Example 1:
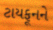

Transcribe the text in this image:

ટાયફૂનને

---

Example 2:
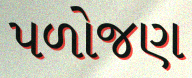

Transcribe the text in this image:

પળોજણ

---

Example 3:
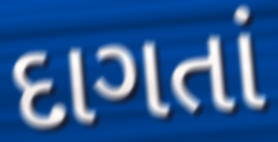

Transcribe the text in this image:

દાગતાં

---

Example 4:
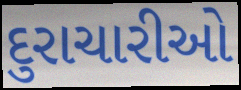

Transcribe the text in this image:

દુરાચારીઓ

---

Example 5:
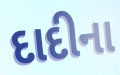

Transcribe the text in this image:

દાદીના